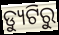
ଡ୍ୟୁଟିରୁ